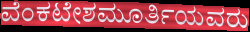
ವೆಂಕಟೇಶಮೂರ್ತಿಯವರು